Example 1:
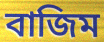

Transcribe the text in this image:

বাজিম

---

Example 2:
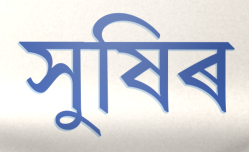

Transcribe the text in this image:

সুষিৰ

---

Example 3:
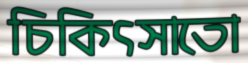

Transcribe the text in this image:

চিকিৎসাতো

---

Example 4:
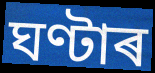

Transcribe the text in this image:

ঘণ্টাৰ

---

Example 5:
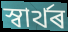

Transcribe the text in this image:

স্বাৰ্থৰ